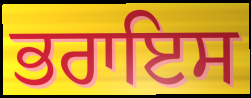
ਭਰਾਇਸ